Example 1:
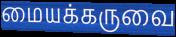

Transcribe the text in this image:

மையக்கருவை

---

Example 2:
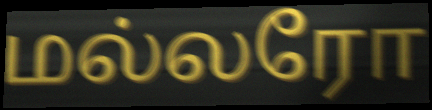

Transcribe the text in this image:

மல்லரோ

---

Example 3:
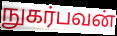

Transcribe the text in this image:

நுகர்பவன்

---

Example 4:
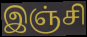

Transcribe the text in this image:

இஞ்சி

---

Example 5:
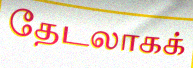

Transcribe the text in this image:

தேடலாகக்